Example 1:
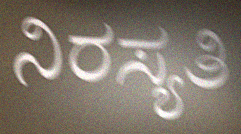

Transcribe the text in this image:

ನಿರಸ್ಯತಿ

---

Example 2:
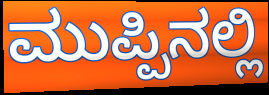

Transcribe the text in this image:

ಮುಪ್ಪಿನಲ್ಲಿ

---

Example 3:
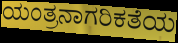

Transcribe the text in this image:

ಯಂತ್ರನಾಗರಿಕತೆಯ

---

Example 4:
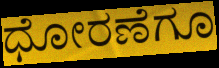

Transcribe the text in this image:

ಧೋರಣೆಗೂ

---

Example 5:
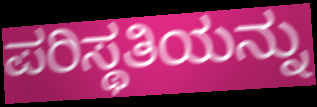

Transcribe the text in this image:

ಪರಿಸ್ಥತಿಯನ್ನು